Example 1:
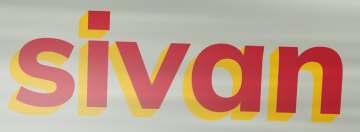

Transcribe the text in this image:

sivan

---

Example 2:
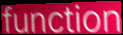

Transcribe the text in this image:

function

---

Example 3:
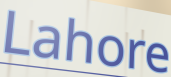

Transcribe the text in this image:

Lahore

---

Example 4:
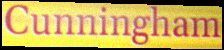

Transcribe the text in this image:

Cunningham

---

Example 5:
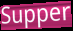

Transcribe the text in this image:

Supper